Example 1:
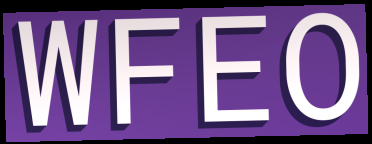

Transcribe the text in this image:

WFEO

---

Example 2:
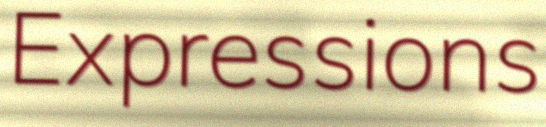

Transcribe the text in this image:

Expressions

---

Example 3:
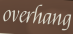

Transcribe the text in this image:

overhang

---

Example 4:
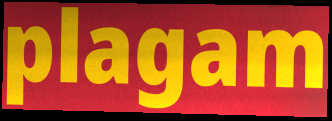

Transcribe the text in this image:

plagam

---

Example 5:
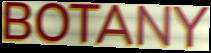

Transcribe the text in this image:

BOTANY